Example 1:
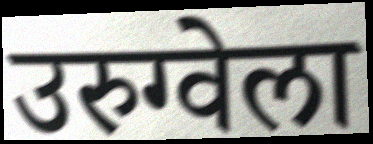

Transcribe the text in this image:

उरुग्वेला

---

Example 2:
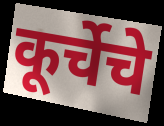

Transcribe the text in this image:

कूर्चेचे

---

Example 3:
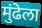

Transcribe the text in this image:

मुंढेला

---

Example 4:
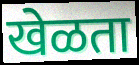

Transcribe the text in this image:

खेळता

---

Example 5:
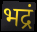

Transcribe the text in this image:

भद्रं